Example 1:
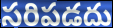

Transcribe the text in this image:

సరిపడదు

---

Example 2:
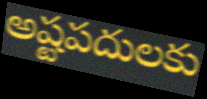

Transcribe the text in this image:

అష్టపదులకు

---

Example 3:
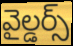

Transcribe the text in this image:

వైల్డర్స్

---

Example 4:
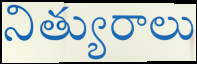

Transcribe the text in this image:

నిత్యురాలు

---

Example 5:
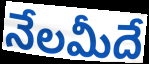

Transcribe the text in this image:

నేలమీదే